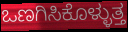
ಒಣಗಿಸಿಕೊಳ್ಳುತ್ತ